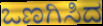
ಒಣಗಿಸಿದ